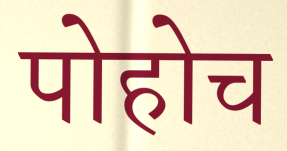
पोहोच